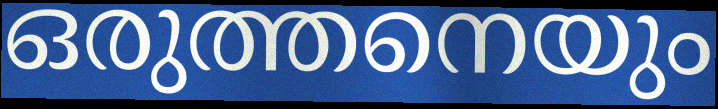
ഒരുത്തനെയും